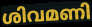
ശിവമണി